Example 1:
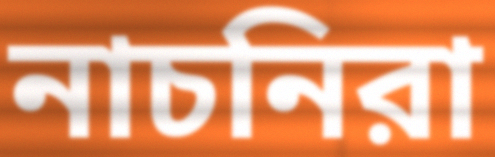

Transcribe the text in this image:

নাচনিরা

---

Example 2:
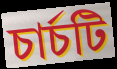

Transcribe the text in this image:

চার্চটি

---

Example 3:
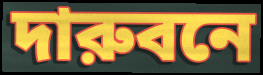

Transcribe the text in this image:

দারুবনে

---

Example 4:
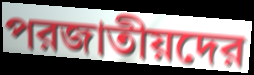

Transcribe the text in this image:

পরজাতীয়দের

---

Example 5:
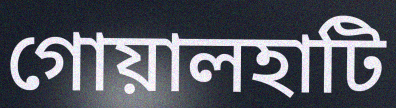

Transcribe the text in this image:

গোয়ালহাটি